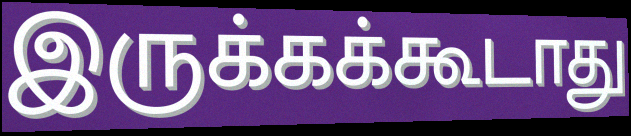
இருக்கக்கூடாது